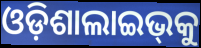
ଓଡ଼ିଶାଲାଇଭ୍‌କୁ